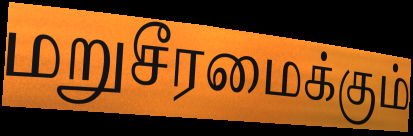
மறுசீரமைக்கும்